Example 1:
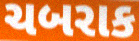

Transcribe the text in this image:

ચબરાક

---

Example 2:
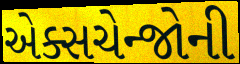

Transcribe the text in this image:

એક્સચેન્જોની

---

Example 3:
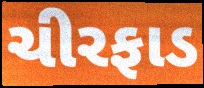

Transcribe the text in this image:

ચીરફાડ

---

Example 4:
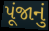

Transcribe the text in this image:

પૂંજાનું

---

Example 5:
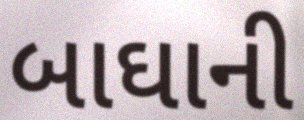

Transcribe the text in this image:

બાઘાની